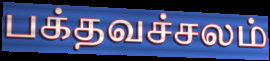
பக்தவச்சலம்